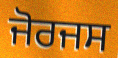
ਜੋਰਜਸ